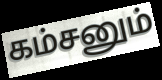
கம்சனும்